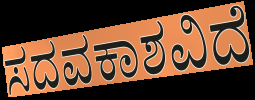
ಸದವಕಾಶವಿದೆ